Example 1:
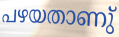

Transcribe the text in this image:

പഴയതാണു്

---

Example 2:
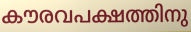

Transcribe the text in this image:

കൗരവപക്ഷത്തിനു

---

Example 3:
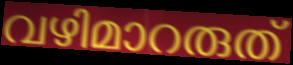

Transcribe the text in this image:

വഴിമാറരുത്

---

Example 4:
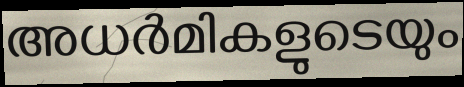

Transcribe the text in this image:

അധർമികളുടെയും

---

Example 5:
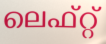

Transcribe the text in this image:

ലെഫ്റ്റ്